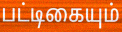
பட்டிகையும்